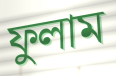
ফুলাম